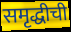
समृद्धीची